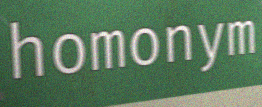
homonym